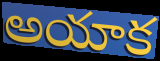
అయాక